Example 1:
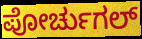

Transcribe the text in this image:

ಪೋರ್ಚುಗಲ್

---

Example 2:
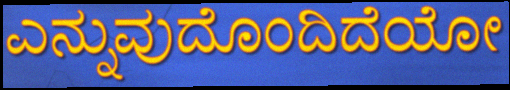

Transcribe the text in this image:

ಎನ್ನುವುದೊಂದಿದೆಯೋ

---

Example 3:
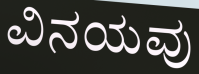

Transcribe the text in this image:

ವಿನಯವು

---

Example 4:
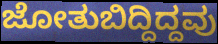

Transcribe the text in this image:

ಜೋತುಬಿದ್ದಿದ್ದವು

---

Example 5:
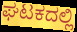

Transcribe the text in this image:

ಘಟಕದಲ್ಲಿ